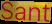
Sant